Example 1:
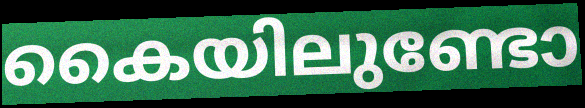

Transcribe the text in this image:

കൈയിലുണ്ടോ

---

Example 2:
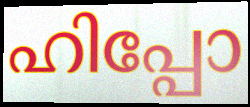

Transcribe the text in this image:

ഹിപ്പോ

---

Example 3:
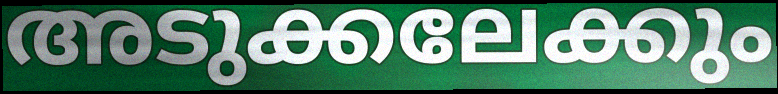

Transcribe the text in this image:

അടുക്കലേക്കും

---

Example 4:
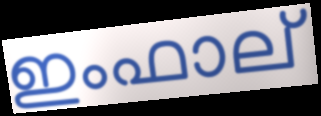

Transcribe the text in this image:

ഇംഫാല്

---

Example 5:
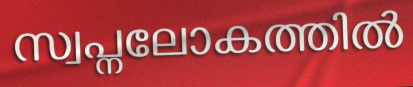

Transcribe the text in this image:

സ്വപ്നലോകത്തിൽ